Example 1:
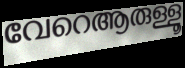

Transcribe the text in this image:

വേറെആരുള്ളൂ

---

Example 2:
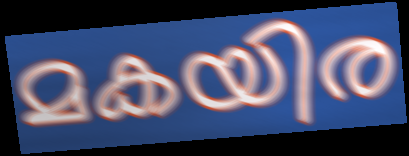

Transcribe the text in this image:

മകയിര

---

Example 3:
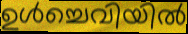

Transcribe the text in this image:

ഉൾച്ചെവിയിൽ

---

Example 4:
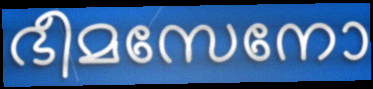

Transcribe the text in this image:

ഭീമസേനോ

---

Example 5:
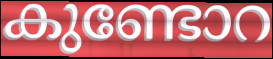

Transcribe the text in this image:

കുണ്ടോറ